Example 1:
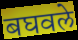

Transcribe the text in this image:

बघवले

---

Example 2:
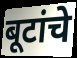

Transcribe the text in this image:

बूटांचे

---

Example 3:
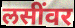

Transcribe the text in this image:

लसींवर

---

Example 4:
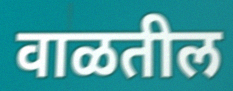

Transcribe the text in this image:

वाळतील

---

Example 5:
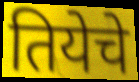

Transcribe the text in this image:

तियेचे